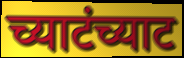
च्याटंच्याट